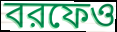
বরফেও